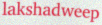
lakshadweep